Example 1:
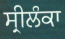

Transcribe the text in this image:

ਸ੍ਰੀਲੰਕਾ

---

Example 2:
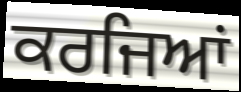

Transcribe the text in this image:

ਕਰਜਿਆਂ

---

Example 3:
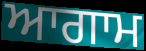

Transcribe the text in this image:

ਆਗਾਮ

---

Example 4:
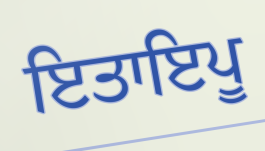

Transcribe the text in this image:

ਇਤਾਇਪੂ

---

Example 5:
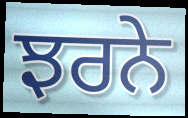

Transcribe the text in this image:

ਝਰਨੇ